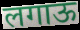
लगाऊ